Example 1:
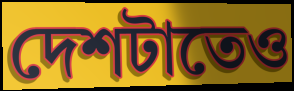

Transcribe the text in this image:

দেশটাতেও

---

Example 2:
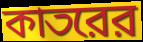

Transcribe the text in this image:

কাতরের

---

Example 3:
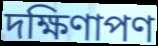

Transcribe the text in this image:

দক্ষিণাপণ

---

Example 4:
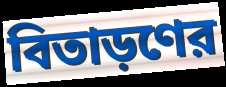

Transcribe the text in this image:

বিতাড়ণের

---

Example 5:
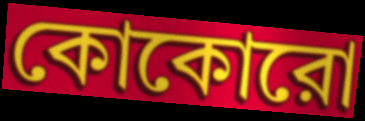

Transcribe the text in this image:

কোকোরো